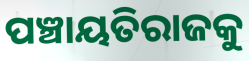
ପଞ୍ଚାୟତିରାଜକୁ